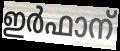
ഇർഫാന്